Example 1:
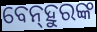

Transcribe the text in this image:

ବେନ୍‍ହୁରଙ୍କ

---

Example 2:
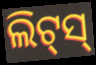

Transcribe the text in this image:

ଲିଟ୍‌ସ୍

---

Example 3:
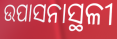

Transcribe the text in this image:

ଉପାସନାସ୍ଥଳୀ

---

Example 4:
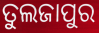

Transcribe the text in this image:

ତୁଲଜାପୁର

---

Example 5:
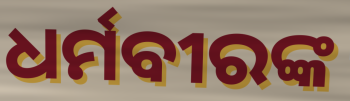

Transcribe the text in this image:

ଧର୍ମବୀରଙ୍କ